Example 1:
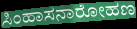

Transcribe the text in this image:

ಸಿಂಹಾಸನಾರೋಹಣ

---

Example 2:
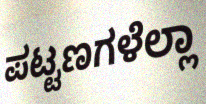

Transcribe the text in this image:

ಪಟ್ಟಣಗಳೆಲ್ಲಾ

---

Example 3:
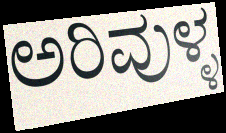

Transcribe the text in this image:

ಅರಿವುಳ್ಳ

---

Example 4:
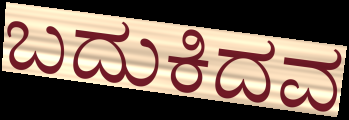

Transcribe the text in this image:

ಬದುಕಿದವ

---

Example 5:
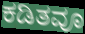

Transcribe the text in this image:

ಕಡಿತವೂ